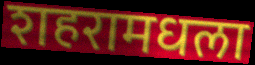
शहरामधला